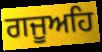
ਗਜੂਅਹਿ